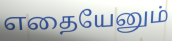
எதையேனும்